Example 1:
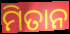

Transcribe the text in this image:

ମିତାନ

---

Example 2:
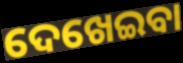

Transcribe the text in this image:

ଦେଖେଇବା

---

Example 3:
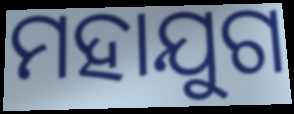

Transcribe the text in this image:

ମହାଯୁଗ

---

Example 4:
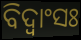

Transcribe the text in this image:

ବିଦ୍ଵାଂସଃ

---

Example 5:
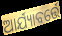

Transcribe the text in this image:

ଆର୍ଯ୍ୟାବର୍ତ୍ତେ